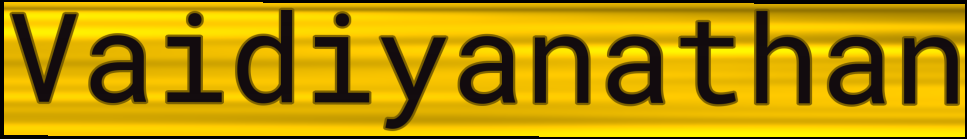
Vaidiyanathan